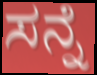
ಸನ್ನೆ